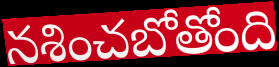
నశించబోతోంది